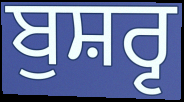
ਬੁਸ਼ਰ੍ਟ